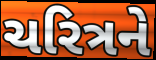
ચરિત્રને